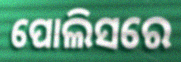
ପୋଲିସରେ